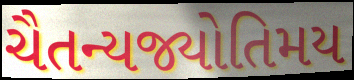
ચૈતન્યજ્યોતિમય